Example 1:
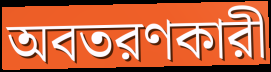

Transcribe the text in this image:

অবতরণকারী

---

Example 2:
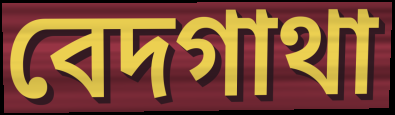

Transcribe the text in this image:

বেদগাথা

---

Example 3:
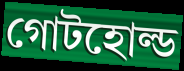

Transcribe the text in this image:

গোটহোল্ড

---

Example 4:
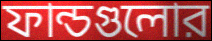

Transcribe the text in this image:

ফান্ডগুলোর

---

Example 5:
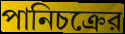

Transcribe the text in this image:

পানিচক্রের